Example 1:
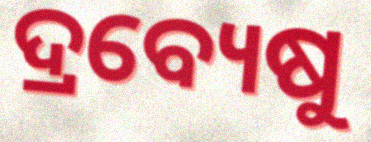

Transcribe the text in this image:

ଦ୍ରବ୍ୟେଷୁ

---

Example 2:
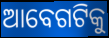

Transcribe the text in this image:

ଆବେଗଟିକୁ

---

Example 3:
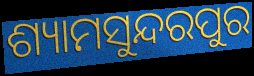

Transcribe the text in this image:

ଶ୍ୟାମସୁନ୍ଦରପୁର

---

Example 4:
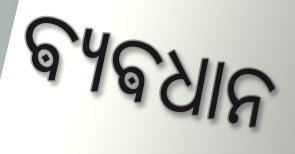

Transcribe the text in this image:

ଵ୍ୟଵଧାନ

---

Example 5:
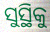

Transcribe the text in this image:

ସୁସ୍ଥିକୁ